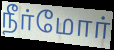
நீர்மோர்